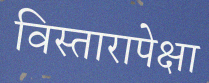
विस्तारापेक्षा